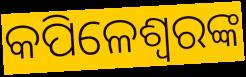
କପିଳେଶ୍ବରଙ୍କ